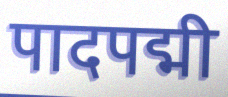
पादपद्मी